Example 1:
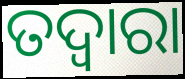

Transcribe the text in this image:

ତଦ୍ବାରା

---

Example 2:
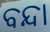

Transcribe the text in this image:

ବନ୍ଦା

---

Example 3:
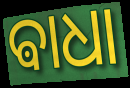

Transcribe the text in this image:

ଵାଧା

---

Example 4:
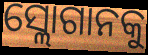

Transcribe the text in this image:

ସ୍ଲୋଗାନକୁ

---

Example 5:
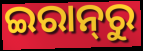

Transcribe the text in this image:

ଇରାନ୍‌ରୁ